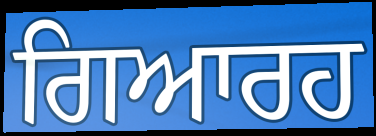
ਗਿਆਰਹ